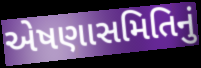
એષણાસમિતિનું